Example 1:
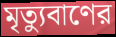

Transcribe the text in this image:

মৃত্যুবাণের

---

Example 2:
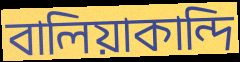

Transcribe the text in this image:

বালিয়াকান্দি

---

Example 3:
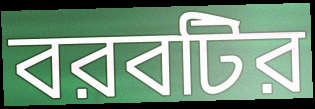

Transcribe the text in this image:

বরবটির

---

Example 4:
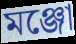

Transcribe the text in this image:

মঞ্জো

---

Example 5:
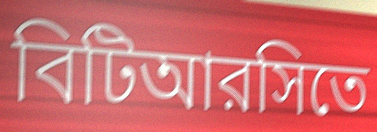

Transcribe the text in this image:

বিটিআরসিতে